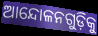
ଆନ୍ଦୋଳନଗୁଡ଼ିକୁ